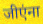
जीएंना